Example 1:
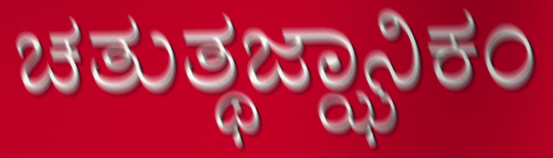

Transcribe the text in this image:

ಚತುತ್ಥಜ್ಝಾನಿಕಂ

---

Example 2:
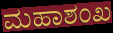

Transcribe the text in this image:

ಮಹಾಶಂಖ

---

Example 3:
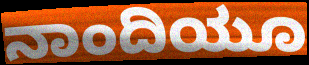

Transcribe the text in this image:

ನಾಂದಿಯೂ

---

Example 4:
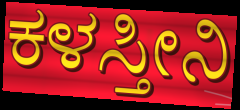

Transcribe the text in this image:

ಕಳಸ್ತೀನಿ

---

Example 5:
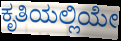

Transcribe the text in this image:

ಕೃತಿಯಲ್ಲಿಯೇ